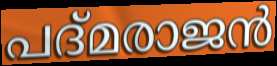
പദ്മരാജൻ